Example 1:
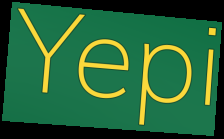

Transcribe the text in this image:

Yepi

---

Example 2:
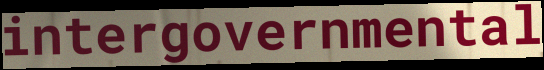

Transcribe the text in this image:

intergovernmental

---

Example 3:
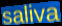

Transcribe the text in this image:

saliva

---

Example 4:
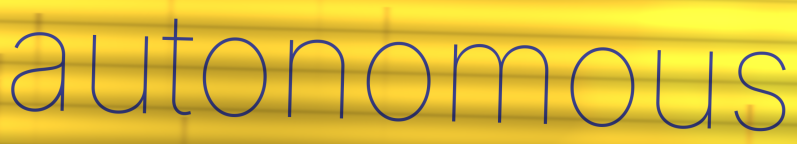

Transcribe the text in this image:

autonomous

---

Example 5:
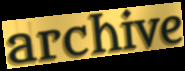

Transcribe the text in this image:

archive